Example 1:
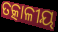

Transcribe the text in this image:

ତତ୍କାଳୀୟ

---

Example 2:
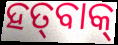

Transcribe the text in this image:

ହତ୍‌ବାକ୍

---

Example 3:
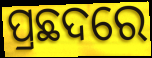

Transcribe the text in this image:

ପ୍ରଛଦରେ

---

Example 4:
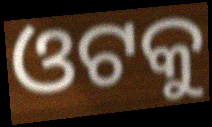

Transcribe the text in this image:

ଓଟକୁ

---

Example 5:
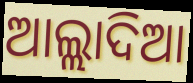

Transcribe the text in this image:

ଆଲ୍ଲାଦିଆ